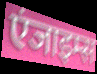
एंजाइम्‍स